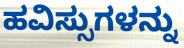
ಹವಿಸ್ಸುಗಳನ್ನು